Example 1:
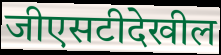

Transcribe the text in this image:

जीएसटीदेखील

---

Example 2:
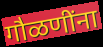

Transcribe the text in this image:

गौळणींना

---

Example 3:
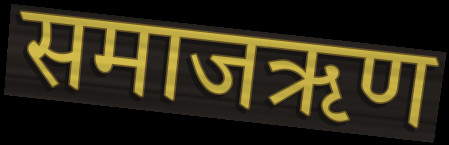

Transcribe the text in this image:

समाजऋण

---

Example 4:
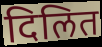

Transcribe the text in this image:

दिलित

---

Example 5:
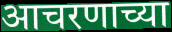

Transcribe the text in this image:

आचरणाच्या